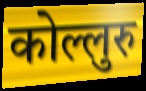
कोल्लुरु